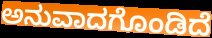
ಅನುವಾದಗೊಂಡಿದೆ